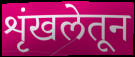
शृंखलेतून